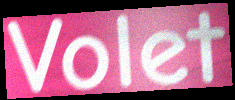
Volet